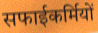
सफाईकर्मियों